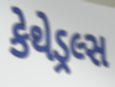
કેથેડ્રલ્સ